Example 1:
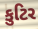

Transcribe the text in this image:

કુટિર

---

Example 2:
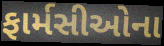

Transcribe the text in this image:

ફાર્મસીઓના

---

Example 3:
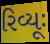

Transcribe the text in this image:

રિવ્યૂઃ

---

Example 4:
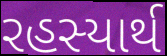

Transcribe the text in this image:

રહસ્યાર્થ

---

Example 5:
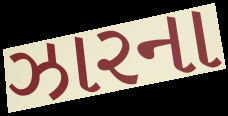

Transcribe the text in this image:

ઝારના